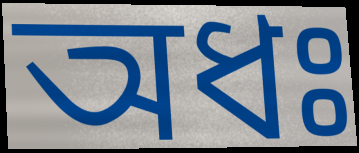
অধঃ